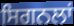
ਸਿਗਨਲਾਂ